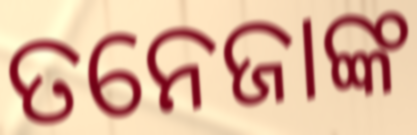
ତନେଜାଙ୍କ